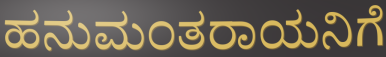
ಹನುಮಂತರಾಯನಿಗೆ